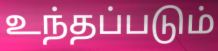
உந்தப்படும்